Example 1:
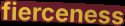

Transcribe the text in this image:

fierceness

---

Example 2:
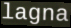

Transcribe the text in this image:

lagna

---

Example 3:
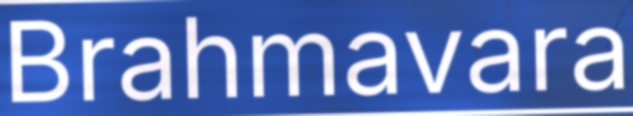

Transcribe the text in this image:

Brahmavara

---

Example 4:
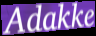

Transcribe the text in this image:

Adakke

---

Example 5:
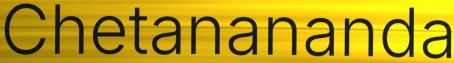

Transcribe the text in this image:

Chetanananda